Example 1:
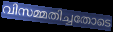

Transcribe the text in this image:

വിസമ്മതിച്ചതോടെ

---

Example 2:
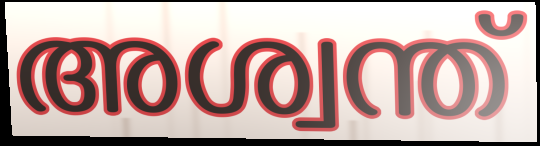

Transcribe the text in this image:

അശ്വന്ത്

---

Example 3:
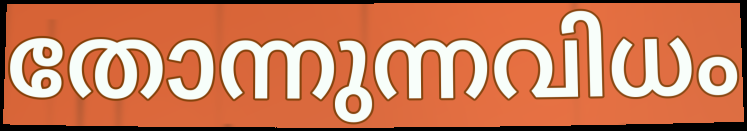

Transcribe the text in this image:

തോന്നുന്നവിധം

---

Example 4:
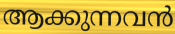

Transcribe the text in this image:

ആക്കുന്നവൻ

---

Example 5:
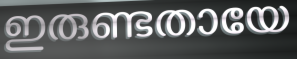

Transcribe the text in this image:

ഇരുണ്ടതായേ